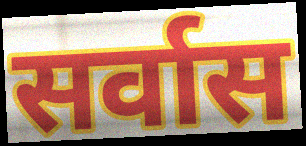
सर्वास